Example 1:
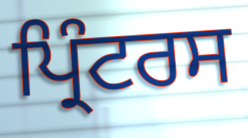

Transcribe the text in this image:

ਪ੍ਰਿੰਟਰਸ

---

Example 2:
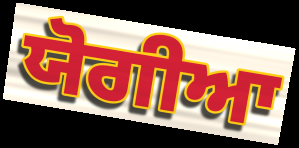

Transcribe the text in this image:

ਯੋਗੀਆ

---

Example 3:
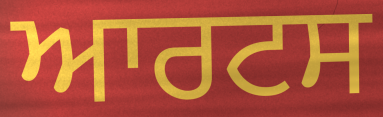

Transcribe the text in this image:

ਆਰਟਸ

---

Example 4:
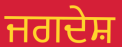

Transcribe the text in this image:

ਜਗਦੇਸ਼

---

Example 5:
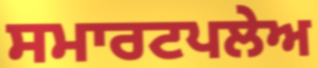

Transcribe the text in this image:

ਸਮਾਰਟਪਲੇਅ